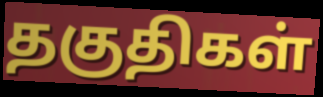
தகுதிகள்